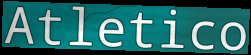
Atletico